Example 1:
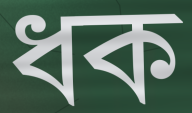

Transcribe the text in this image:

ধক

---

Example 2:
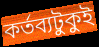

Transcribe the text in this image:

কর্তব্যটুকুই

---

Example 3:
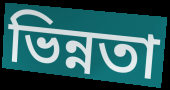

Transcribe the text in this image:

ভিন্নতা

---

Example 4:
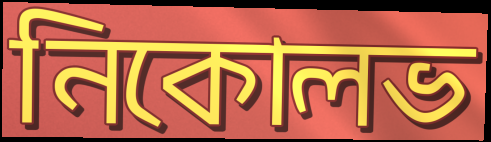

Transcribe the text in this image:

নিকোলভ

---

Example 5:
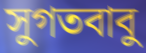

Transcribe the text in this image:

সুগতবাবু